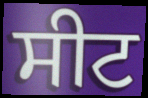
ਸੀਟ